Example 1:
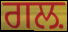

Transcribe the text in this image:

ਗਲ਼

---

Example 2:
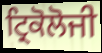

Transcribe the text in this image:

ਟ੍ਰਿਕੋਲੋਜੀ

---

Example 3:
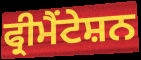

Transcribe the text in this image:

ਫ੍ਰੀਮੈਂਟੇਸ਼ਨ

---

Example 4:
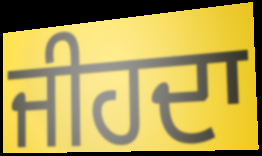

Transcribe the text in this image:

ਜੀਹਦਾ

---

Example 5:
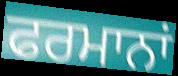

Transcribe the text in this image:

ਫਰਮਾਨਾਂ